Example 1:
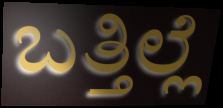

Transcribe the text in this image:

ಬತ್ತಿಲ್ಲೆ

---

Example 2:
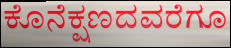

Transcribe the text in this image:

ಕೊನೆಕ್ಷಣದವರೆಗೂ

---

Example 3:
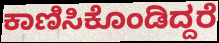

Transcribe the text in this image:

ಕಾಣಿಸಿಕೊಂಡಿದ್ದರೆ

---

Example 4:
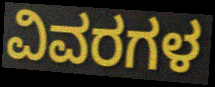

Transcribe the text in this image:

ವಿವರಗಳ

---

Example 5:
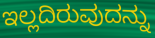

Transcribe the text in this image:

ಇಲ್ಲದಿರುವುದನ್ನು